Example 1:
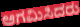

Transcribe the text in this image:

ಆಗಮಿಸಿದರು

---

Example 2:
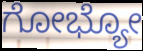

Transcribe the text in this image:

ಗೋಭ್ಯೋ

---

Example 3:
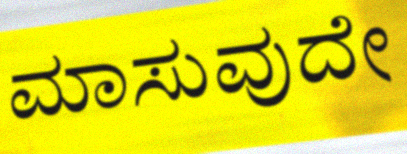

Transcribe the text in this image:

ಮಾಸುವುದೇ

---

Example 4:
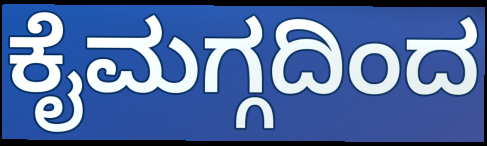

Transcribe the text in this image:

ಕೈಮಗ್ಗದಿಂದ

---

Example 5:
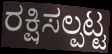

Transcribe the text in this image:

ರಕ್ಷಿಸಲ್ಪಟ್ಟ